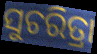
ସୁଚରିତ୍ରା